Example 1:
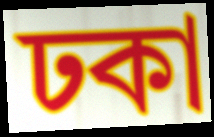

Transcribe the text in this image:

ঢকা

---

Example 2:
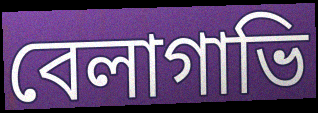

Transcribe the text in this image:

বেলাগাভি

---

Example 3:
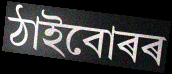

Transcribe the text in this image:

ঠাইবোৰৰ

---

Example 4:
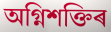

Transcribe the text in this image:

অগ্নিশক্তিৰ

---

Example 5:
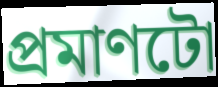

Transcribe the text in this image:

প্ৰমাণটো